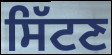
ਸਿੱਟਣ